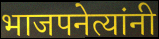
भाजपनेत्यांनी